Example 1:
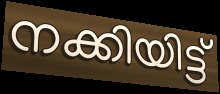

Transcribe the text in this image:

നക്കിയിട്ട്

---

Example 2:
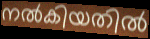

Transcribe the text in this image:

നൽകിയതിൽ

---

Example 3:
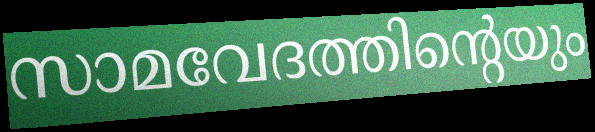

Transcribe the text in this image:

സാമവേദത്തിന്റെയും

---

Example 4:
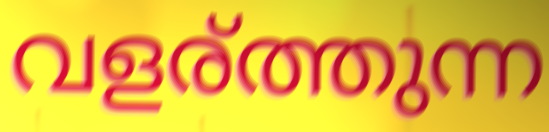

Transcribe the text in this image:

വളര്ത്തുന്ന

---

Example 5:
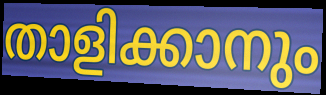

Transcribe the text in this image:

താളിക്കാനും